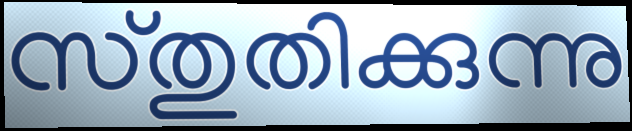
സ്തുതിക്കുന്നു